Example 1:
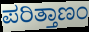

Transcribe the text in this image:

ಪರಿತ್ತಾಣಂ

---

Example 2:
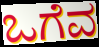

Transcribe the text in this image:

ಒಗೆವ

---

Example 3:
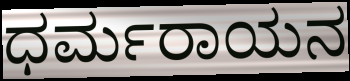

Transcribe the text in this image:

ಧರ್ಮರಾಯನ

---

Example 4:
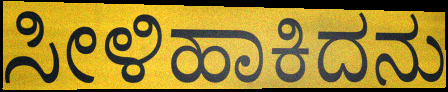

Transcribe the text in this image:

ಸೀಳಿಹಾಕಿದನು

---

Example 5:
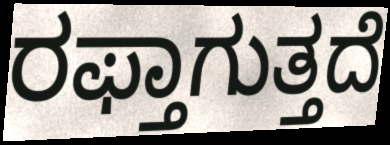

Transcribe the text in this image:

ರಫ್ತಾಗುತ್ತದೆ